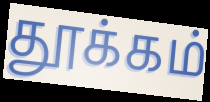
தூக்கம்